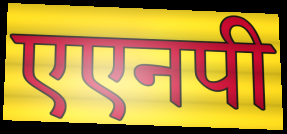
एएनपी